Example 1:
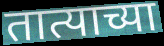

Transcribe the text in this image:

तात्याच्या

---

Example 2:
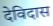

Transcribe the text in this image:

देविदास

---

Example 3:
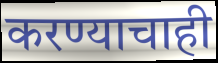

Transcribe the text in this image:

करण्याचाही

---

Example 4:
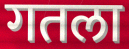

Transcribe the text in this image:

गतला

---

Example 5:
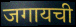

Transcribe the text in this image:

जगायची